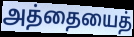
அத்தையைத்